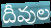
దీవుల